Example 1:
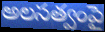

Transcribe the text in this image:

అలసత్వంపై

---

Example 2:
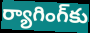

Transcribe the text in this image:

ర్యాగింగ్‌కు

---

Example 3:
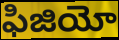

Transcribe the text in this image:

ఫిజియో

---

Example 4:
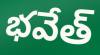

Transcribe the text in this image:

భవేత్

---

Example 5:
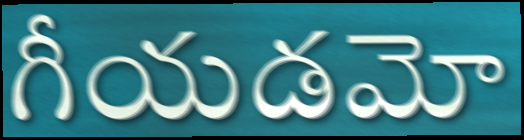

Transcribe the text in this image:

గీయడమో